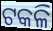
ଟକଳି